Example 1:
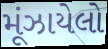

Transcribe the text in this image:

મૂંઝાયેલો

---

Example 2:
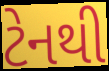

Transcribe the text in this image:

ટેનથી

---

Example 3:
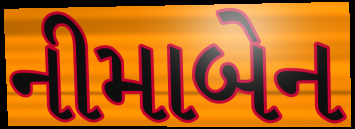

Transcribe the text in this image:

નીમાબેન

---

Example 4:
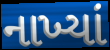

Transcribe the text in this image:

નાખ્યાં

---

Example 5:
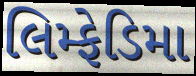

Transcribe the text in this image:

લિમ્ફેડિમા